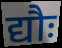
द्यौः